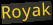
Royak